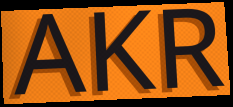
AKR